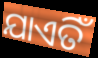
ଯାଏତିଁ